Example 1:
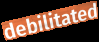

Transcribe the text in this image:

debilitated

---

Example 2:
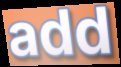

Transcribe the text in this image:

add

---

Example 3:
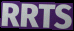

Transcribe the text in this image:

RRTS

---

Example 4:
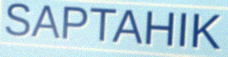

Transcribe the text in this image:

SAPTAHIK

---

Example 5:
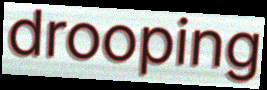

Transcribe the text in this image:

drooping